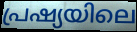
പ്രഷ്യയിലെ